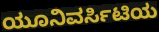
ಯೂನಿವರ್ಸಿಟಿಯ